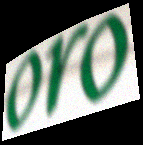
oro